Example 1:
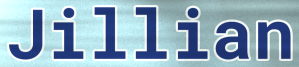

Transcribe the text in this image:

Jillian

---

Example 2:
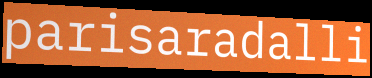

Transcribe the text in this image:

parisaradalli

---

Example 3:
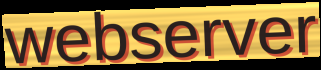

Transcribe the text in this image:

webserver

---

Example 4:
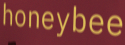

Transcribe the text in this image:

honeybee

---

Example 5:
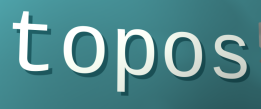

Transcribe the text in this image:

topos